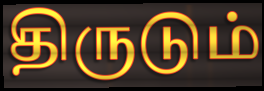
திருடும்